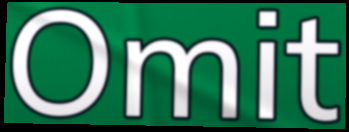
Omit